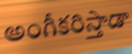
అంగీకరిస్తాడా